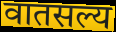
वातसल्य